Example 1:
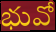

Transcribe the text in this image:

భువో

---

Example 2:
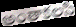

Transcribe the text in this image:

అంతాకలసి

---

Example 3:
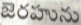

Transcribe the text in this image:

జెరహును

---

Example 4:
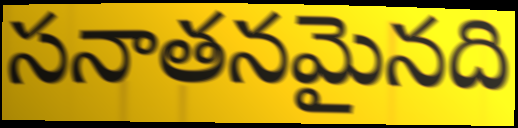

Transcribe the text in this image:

సనాతనమైనది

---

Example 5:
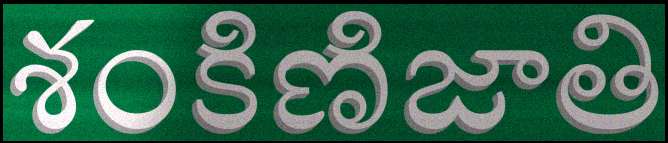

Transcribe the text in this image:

శంకిణిజాతి